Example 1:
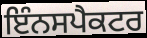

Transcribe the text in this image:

ਇੰਨਸਪੈਕਟਰ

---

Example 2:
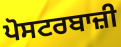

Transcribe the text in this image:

ਪੋਸਟਰਬਾਜ਼ੀ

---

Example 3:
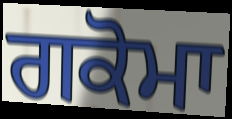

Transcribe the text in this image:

ਗਕੋਮਾ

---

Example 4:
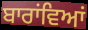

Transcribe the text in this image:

ਬਾਰਾਂਵਿਆਂ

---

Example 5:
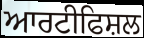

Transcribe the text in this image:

ਆਰਟੀਫਿਸ਼ਲ